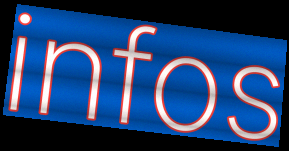
infos